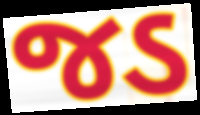
જડ